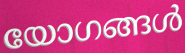
യോഗങ്ങൾ